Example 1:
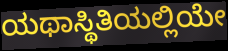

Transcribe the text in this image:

ಯಥಾಸ್ಥಿತಿಯಲ್ಲಿಯೇ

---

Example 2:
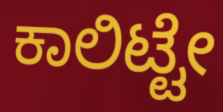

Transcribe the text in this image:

ಕಾಲಿಟ್ಟೇ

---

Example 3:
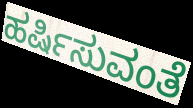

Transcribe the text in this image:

ಹರ್ಷಿಸುವಂತೆ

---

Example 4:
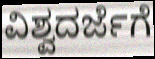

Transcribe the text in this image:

ವಿಶ್ವದರ್ಜೆಗೆ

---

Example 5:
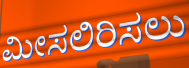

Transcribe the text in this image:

ಮೀಸಲಿರಿಸಲು